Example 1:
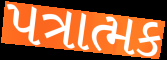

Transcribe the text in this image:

પત્રાત્મક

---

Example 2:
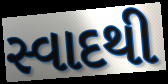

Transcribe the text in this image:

સ્વાદથી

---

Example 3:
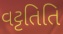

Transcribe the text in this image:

વટ્ટતિતિ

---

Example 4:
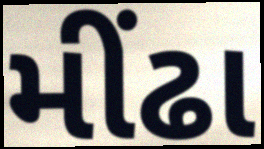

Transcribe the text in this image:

મીંઢા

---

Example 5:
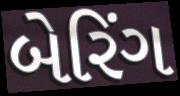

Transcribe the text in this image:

બેરિંગ